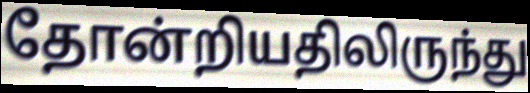
தோன்றியதிலிருந்து